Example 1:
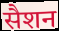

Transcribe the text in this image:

सैशन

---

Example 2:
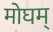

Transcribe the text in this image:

मोघम्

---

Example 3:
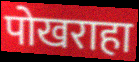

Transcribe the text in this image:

पोखराहा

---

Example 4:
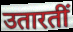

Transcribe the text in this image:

उतारतीं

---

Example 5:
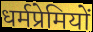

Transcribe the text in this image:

धर्मप्रेमियों